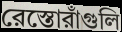
রেস্তোরাঁগুলি